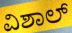
ವಿಶಾಲ್